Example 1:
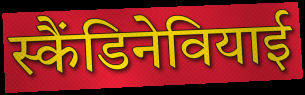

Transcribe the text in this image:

स्कैंडिनेवियाई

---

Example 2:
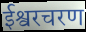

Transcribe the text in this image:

ईश्वरचरण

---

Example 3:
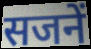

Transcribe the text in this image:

सजनें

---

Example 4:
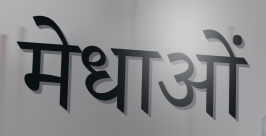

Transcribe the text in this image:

मेधाओं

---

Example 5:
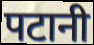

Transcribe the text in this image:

पटानी